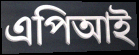
এপিআই